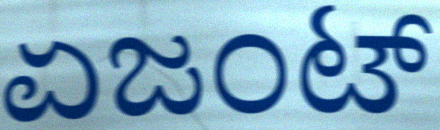
ಏಜಂಟ್